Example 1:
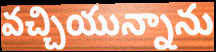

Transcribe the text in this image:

వచ్చియున్నాను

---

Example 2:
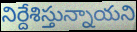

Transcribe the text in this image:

నిర్దేశిస్తున్నాయని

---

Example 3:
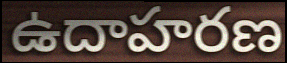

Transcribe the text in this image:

ఉదాహరణ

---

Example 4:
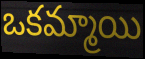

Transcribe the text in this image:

ఒకమ్మాయి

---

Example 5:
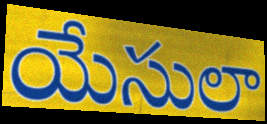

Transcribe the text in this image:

యేసులా